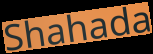
Shahada